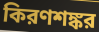
কিরণশঙ্কর